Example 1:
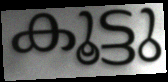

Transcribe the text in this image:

കൂട്ടു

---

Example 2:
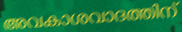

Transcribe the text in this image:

അവകാശവാദത്തിന്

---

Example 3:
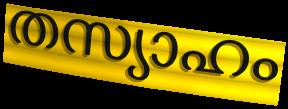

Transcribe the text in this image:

തസ്യാഹം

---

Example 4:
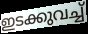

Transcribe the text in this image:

ഇടക്കുവച്ച്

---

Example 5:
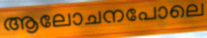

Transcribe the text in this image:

ആലോചനപോലെ